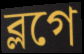
ব্লগে